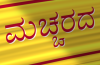
ಮಚ್ಚರದ